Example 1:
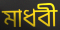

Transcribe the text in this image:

মাধবী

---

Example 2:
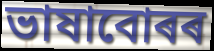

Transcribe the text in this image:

ভাষাবোৰৰ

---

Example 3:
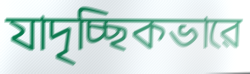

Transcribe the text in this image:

যাদৃচ্ছিকভাৱে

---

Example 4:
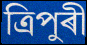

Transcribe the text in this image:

ত্ৰিপুৰী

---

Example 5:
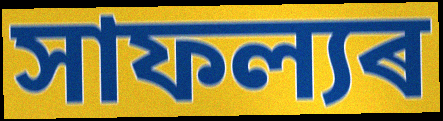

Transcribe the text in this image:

সাফল্যৰ